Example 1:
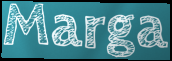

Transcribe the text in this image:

Marga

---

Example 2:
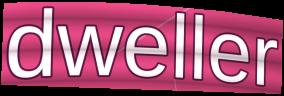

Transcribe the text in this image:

dweller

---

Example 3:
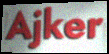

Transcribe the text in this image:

Ajker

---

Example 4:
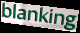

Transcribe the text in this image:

blanking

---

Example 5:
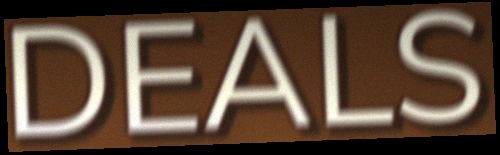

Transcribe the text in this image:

DEALS